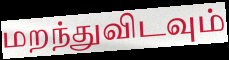
மறந்துவிடவும்